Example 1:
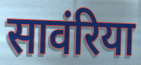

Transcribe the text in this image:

सावंरिया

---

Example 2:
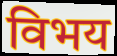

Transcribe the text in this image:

विभय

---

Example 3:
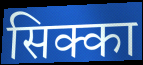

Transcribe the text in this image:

सिक्‍का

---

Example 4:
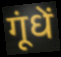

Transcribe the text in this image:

गूंधें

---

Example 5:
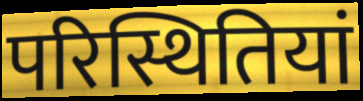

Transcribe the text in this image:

परिस्थितियां